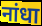
नांधा